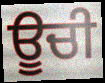
ਊਚੀ